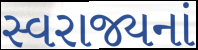
સ્વરાજ્યનાં